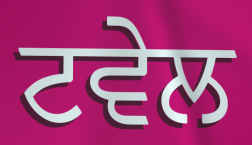
ਟਵੇਲ